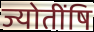
ज्योतींषि